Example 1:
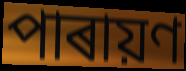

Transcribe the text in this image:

পাৰায়ণ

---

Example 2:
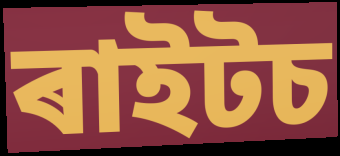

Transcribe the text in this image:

ৰাইটচ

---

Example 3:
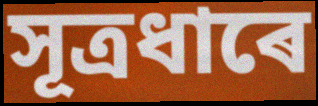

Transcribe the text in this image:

সূত্ৰধাৰে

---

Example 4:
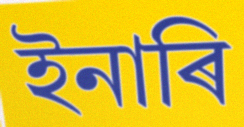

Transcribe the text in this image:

ইনাৰি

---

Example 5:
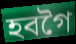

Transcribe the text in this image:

হবগৈ